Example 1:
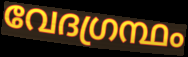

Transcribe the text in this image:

വേദഗ്രന്ഥം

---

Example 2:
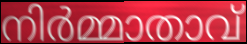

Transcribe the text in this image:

നിർമ്മാതാവ്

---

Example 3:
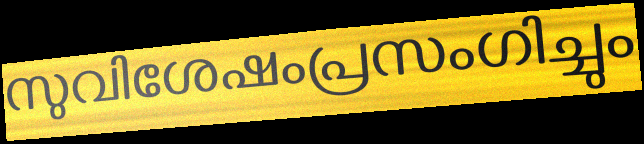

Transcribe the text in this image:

സുവിശേഷംപ്രസംഗിച്ചും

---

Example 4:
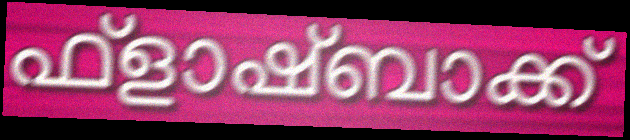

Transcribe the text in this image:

ഫ്ളാഷ്ബാക്ക്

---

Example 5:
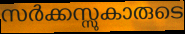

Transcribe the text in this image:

സർക്കസ്സുകാരുടെ